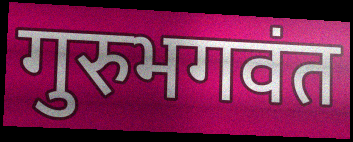
गुरुभगवंत